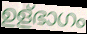
ഉള്ഭാഗം